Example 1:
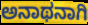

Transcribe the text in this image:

ಅನಾಥನಾಗಿ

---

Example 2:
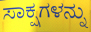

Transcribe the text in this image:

ಸಾಕ್ಷಗಳನ್ನು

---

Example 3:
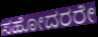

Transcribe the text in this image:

ಸಹೋದರರೇ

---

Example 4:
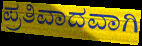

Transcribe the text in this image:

ಪ್ರತಿವಾದವಾಗಿ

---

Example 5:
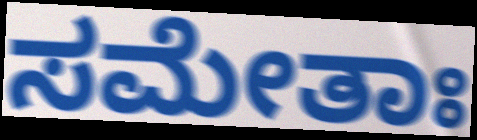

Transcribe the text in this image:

ಸಮೇತಾಃ